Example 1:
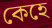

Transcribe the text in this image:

কেহে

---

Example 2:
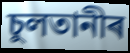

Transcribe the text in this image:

চুলতানীৰ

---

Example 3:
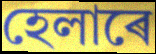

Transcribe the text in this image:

হেলাৰে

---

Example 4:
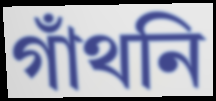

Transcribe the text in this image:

গাঁথনি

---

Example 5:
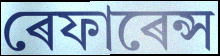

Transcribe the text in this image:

ৰেফাৰেন্স